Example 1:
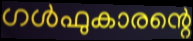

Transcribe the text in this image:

ഗൾഫുകാരന്റെ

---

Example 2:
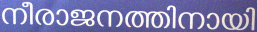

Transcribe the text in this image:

നീരാജനത്തിനായി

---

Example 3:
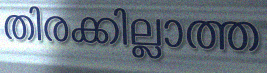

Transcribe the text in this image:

തിരക്കില്ലാത്ത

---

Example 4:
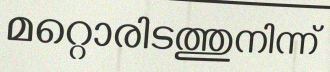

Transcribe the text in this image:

മറ്റൊരിടത്തുനിന്ന്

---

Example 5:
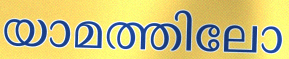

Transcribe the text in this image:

യാമത്തിലോ